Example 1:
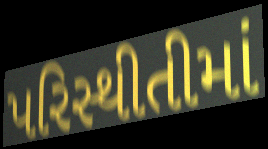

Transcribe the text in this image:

પરિસ્થીતીમાં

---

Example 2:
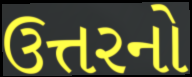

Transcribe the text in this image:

ઉત્તરનો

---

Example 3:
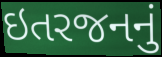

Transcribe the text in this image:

ઇતરજનનું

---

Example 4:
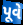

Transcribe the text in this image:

પૂવે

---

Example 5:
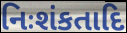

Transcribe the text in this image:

નિઃશંકતાદિ